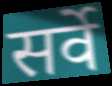
सर्वे